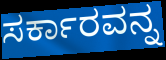
ಸರ್ಕಾರವನ್ನ